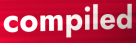
compiled